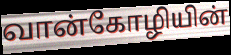
வான்கோழியின்